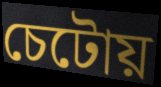
চেটোয়